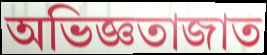
অভিজ্ঞতাজাত